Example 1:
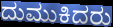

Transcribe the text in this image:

ದುಮುಕಿದರು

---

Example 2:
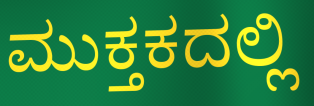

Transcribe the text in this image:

ಮುಕ್ತಕದಲ್ಲಿ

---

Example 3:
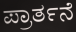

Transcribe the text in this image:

ಪ್ರಾರ್ತನೆ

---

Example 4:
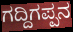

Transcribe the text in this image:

ಗದ್ದಿಗಪ್ಪನ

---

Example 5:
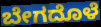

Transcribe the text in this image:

ಬೇಗದೊಳೆ